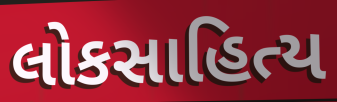
લોકસાહિત્ય